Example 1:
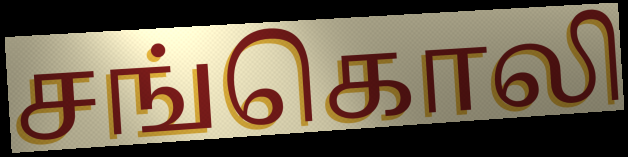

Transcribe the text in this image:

சங்கொலி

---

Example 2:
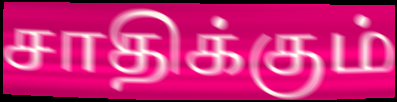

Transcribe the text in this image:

சாதிக்கும்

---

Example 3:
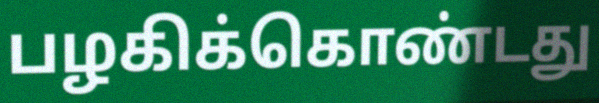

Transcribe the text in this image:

பழகிக்கொண்டது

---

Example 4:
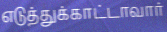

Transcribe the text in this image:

எடுத்துக்காட்டாவார்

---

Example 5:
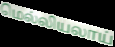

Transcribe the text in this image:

மெல்லியலாய்